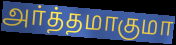
அர்த்தமாகுமா